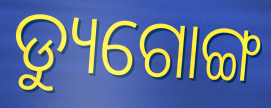
ଡ୍ୟୁଗୋଙ୍ଗ